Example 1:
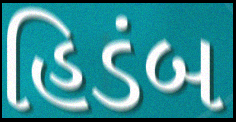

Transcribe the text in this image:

હિડંબ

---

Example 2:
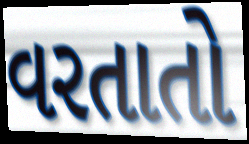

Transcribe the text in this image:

વરતાતો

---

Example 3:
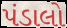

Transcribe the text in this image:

પંડાલો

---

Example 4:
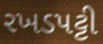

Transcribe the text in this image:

રખડપટ્ટી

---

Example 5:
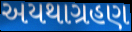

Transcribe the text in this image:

અયથાગ્રહણ